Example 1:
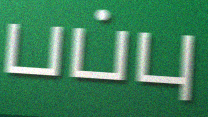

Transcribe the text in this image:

பப்பு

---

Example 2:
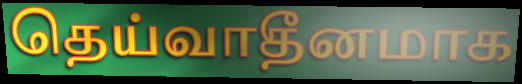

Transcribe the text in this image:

தெய்வாதீனமாக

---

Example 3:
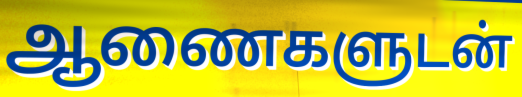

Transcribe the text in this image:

ஆணைகளுடன்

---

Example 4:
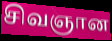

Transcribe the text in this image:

சிவஞான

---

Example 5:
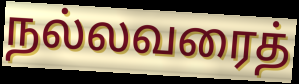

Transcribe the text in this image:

நல்லவரைத்